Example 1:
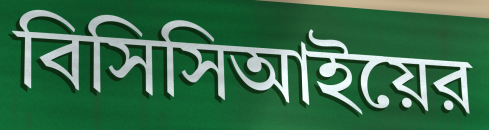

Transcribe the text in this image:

বিসিসিআইয়ের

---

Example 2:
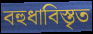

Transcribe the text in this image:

বহুধাবিস্তৃত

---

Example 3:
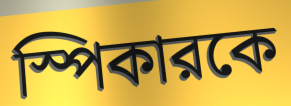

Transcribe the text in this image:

স্পিকারকে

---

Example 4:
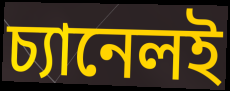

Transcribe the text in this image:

চ্যানেলই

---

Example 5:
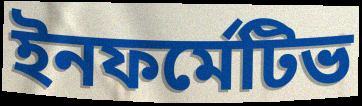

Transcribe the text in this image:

ইনফর্মেটিভ